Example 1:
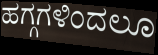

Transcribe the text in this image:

ಹಗ್ಗಗಳಿಂದಲೂ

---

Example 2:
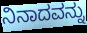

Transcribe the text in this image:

ನಿನಾದವನ್ನು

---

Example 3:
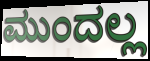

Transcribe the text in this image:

ಮುಂದಲ್ಲ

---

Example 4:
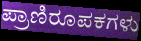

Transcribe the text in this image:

ಪ್ರಾಣಿರೂಪಕಗಳು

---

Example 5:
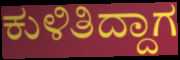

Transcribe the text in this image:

ಕುಳಿತಿದ್ದಾಗ